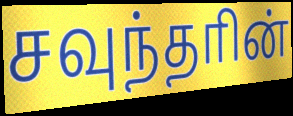
சவுந்தரின்